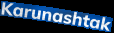
Karunashtak